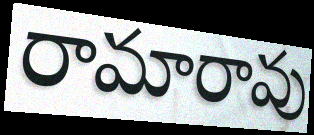
రామారావు